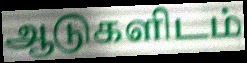
ஆடுகளிடம்